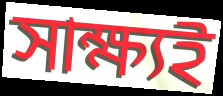
সাক্ষ্যই